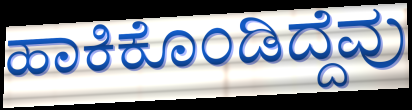
ಹಾಕಿಕೊಂಡಿದ್ದೆವು